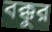
বক্কুর